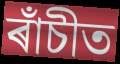
ৰাঁচীত